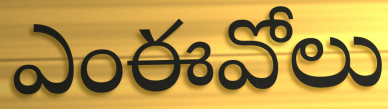
ఎంఈవోలు